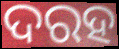
ଦରହ